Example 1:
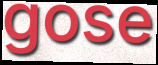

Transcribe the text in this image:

gose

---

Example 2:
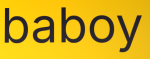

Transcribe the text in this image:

baboy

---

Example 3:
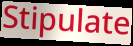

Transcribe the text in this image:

Stipulate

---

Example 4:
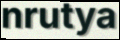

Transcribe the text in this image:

nrutya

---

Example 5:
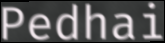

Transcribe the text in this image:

Pedhai